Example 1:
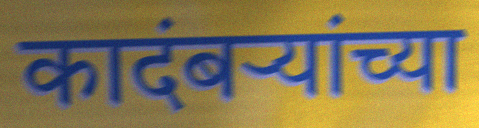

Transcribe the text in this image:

कादंबर्‍यांच्या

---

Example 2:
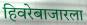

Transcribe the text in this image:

हिवरेबाजारला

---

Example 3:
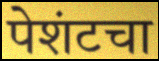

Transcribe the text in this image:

पेशंटचा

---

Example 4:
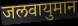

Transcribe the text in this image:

जलवायुमान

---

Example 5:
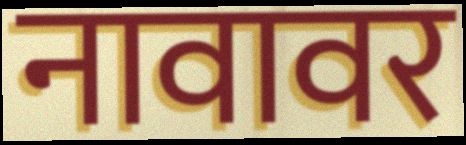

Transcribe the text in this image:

नावावर